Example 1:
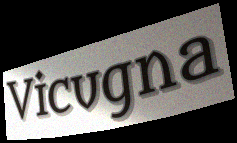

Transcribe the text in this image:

Vicugna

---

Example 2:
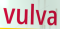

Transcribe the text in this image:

vulva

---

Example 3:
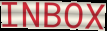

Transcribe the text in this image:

INBOX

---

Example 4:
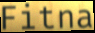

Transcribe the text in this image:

Fitna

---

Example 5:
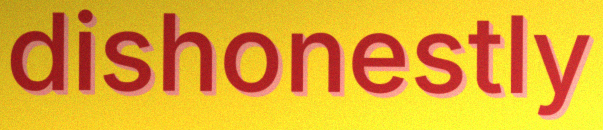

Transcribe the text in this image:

dishonestly